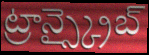
ట్రాన్స్క్రైబ్